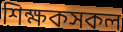
শিক্ষকসকল